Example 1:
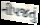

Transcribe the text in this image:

નીપજતું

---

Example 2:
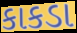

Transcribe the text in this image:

કાકડા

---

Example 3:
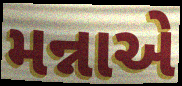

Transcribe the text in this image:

મન્નાએ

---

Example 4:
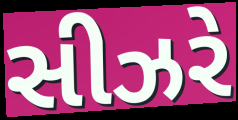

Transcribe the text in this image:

સીઝરે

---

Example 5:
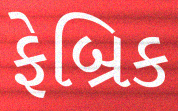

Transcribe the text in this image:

ફેબ્રિક